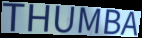
THUMBA